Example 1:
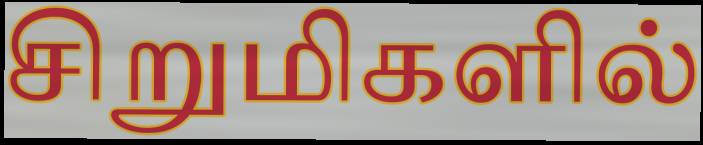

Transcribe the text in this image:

சிறுமிகளில்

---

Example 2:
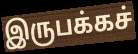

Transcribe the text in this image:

இருபக்கச்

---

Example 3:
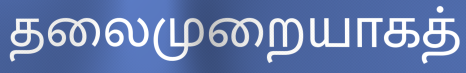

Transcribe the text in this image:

தலைமுறையாகத்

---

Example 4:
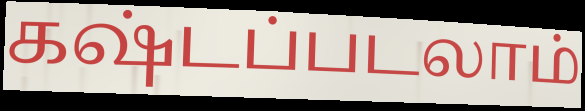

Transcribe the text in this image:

கஷ்டப்படலாம்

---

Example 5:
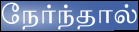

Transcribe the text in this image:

நேர்ந்தால்